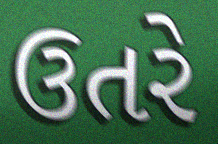
ઉતરે